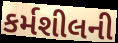
કર્મશીલની